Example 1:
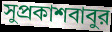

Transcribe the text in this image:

সুপ্রকাশবাবুর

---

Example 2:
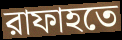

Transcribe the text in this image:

রাফাহতে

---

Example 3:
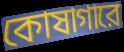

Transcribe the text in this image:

কোষাগারে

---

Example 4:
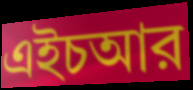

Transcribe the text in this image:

এইচআর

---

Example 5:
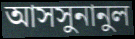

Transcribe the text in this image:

আসসুনানুল